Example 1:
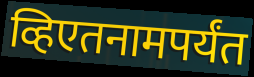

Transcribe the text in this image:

व्हिएतनामपर्यंत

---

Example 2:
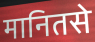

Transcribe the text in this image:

मानितसे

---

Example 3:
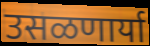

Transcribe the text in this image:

उसळणार्या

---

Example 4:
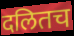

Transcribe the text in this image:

दलितच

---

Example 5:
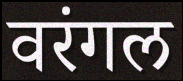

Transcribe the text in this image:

वरंगल